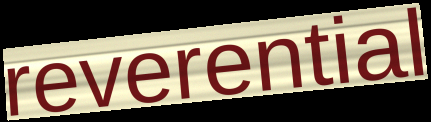
reverential